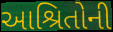
આશ્રિતોની